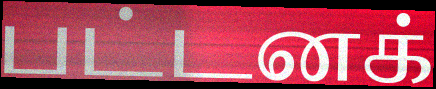
பட்டனக்